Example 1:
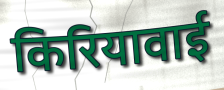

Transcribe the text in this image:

किरियावाई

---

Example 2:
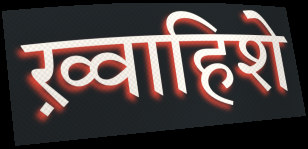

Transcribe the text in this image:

ख़्वाहिशे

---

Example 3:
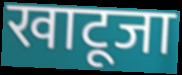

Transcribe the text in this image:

खाटूजा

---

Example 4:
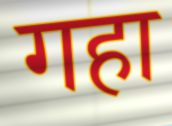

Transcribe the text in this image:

गहा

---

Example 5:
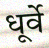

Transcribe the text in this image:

धूर्वे